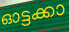
ഓട്ടക്കാ